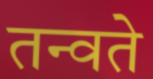
तन्वते